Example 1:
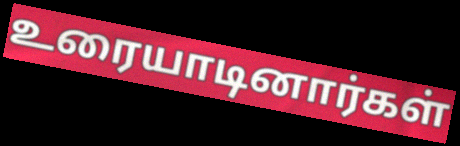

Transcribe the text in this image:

உரையாடினார்கள்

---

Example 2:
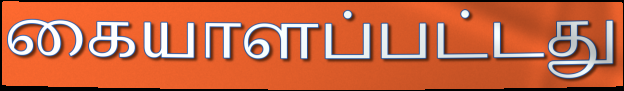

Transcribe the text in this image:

கையாளப்பட்டது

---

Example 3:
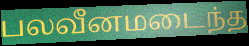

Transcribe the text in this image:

பலவீனமடைந்த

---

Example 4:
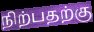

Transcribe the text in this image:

நிற்பதற்கு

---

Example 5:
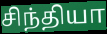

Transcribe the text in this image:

சிந்தியா